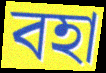
বহা